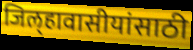
जिल्हावासीयांसाठी